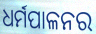
ଧର୍ମପାଳନର